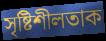
সৃষ্টিশীলতাক